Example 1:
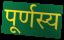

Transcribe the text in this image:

पूर्णस्य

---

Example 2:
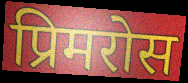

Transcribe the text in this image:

प्रिमरोस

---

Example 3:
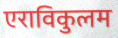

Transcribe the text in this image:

एराविकुलम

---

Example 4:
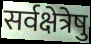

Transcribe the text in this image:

सर्वक्षेत्रेषु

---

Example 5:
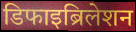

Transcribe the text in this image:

डिफाइब्रिलेशन